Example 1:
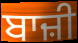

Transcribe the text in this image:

ਬਾਜ਼ੀ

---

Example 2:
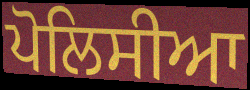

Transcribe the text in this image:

ਪੋਲਿਸੀਆ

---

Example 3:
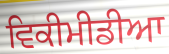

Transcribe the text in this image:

ਵਿਕੀਮੀਡੀਆ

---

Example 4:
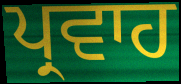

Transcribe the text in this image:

ਪ੍ਰਵਾਹ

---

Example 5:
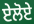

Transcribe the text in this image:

ਏਲੋਏ